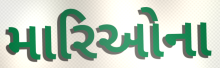
મારિઓના